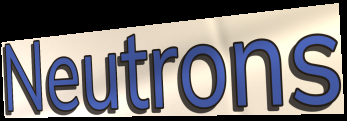
Neutrons